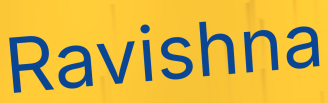
Ravishna